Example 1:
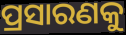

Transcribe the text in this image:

ପ୍ରସାରଣକୁ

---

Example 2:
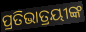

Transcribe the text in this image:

ପ୍ରତିଭାତ୍ରୟୀଙ୍କ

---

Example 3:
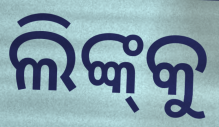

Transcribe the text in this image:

ଲିଙ୍କ୍‌କୁ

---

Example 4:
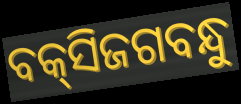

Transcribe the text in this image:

ବକ୍‌ସିଜଗବନ୍ଧୁ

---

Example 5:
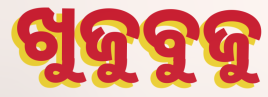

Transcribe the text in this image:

ଖୁଜୁବୁଜୁ